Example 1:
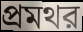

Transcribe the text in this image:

প্রমথর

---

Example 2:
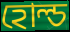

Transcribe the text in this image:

হোল্ড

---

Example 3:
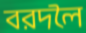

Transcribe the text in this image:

বরদলৈ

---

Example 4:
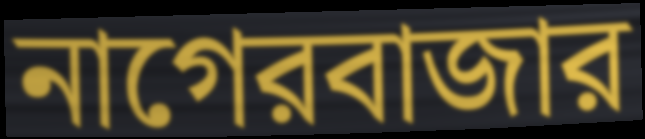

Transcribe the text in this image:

নাগেরবাজার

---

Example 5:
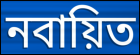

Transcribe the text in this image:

নবায়িত